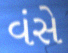
વંસે